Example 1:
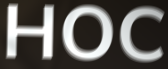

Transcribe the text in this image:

HOC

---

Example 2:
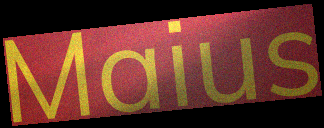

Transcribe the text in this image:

Maius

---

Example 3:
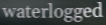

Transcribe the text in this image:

waterlogged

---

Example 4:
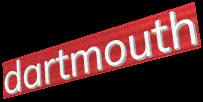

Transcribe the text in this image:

dartmouth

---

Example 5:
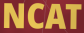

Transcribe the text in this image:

NCAT